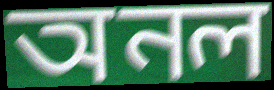
অনল